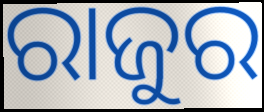
ରାଜୁର